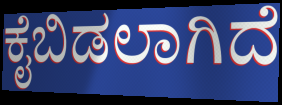
ಕೈಬಿಡಲಾಗಿದೆ